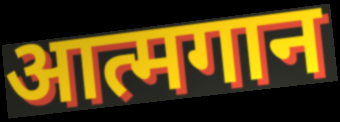
आत्मगान